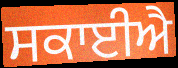
ਸਕਾਈਐ